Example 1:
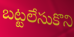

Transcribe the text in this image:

బట్టలేసుకొని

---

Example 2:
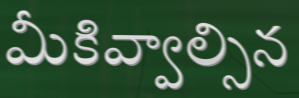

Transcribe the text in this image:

మీకివ్వాల్సిన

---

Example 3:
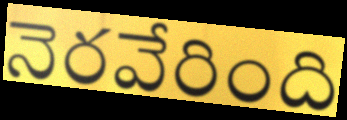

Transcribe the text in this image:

నెరవేరింది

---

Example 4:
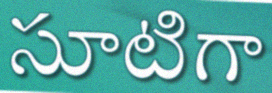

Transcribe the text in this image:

సూటిగా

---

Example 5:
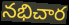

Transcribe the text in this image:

నభిచార